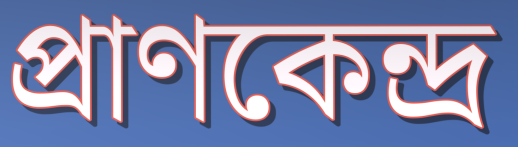
প্ৰাণকেন্দ্ৰ